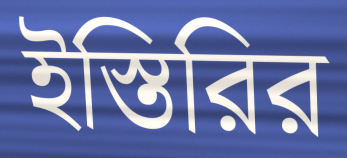
ইস্তিরির